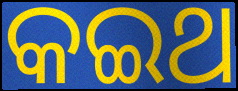
କଇଥ